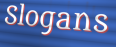
Slogans